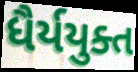
ધૈર્યયુક્ત